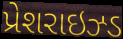
પ્રેશરાઇઝ્ડ